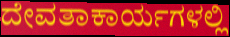
ದೇವತಾಕಾರ್ಯಗಳಲ್ಲಿ